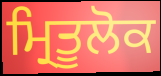
ਮ੍ਰਿਤੂਲੋਕ